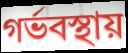
গর্ভবস্থায়